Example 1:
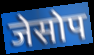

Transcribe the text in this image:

जेसोप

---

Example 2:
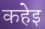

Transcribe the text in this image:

कहेइ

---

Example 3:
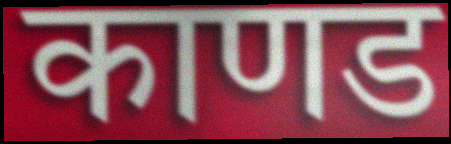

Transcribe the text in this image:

काणड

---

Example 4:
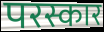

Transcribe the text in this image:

परस्कार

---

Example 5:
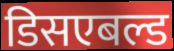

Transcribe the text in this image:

डिसएबल्ड